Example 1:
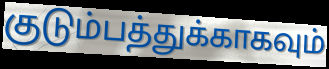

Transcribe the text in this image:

குடும்பத்துக்காகவும்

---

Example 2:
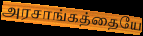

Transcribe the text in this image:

அரசாங்கத்தையே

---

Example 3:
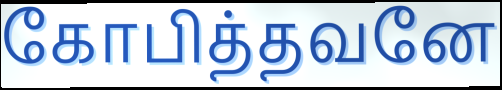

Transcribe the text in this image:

கோபித்தவனே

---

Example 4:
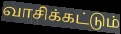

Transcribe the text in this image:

வாசிக்கட்டும்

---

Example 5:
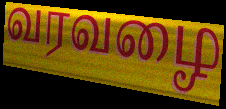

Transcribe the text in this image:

வரவழை